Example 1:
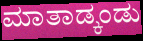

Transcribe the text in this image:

ಮಾತಾಡ್ಕಂಡು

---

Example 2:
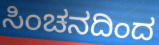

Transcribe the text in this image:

ಸಿಂಚನದಿಂದ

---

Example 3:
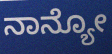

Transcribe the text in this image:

ನಾನ್ಯೋ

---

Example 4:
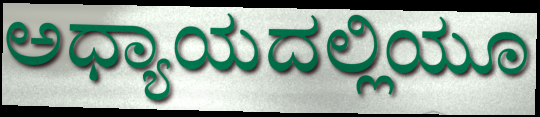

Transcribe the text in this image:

ಅಧ್ಯಾಯದಲ್ಲಿಯೂ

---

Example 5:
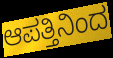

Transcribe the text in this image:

ಆಪತ್ತಿನಿಂದ